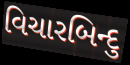
વિચારબિન્દુ